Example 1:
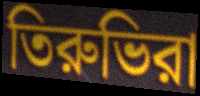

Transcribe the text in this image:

তিরুভিরা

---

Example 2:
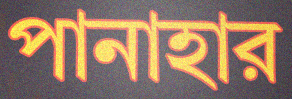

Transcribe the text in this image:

পানাহার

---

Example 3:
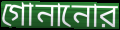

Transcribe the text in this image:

গোনানোর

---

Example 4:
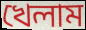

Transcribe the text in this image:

খেলাম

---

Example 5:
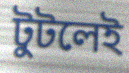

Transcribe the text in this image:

টুটলেই